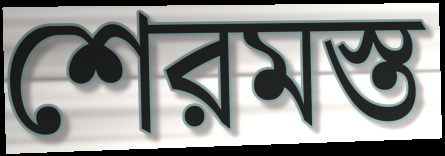
শেরমস্ত